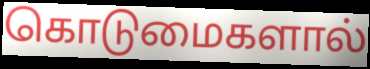
கொடுமைகளால்